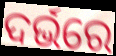
ଦର୍ଭରେ